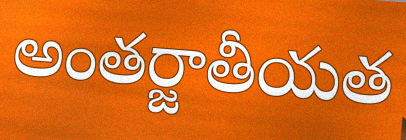
అంతర్జాతీయత